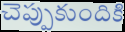
చెప్పుకుందికి